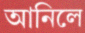
আনিলে